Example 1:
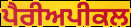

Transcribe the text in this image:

ਪੈਰੀਅਪੀਕਲ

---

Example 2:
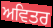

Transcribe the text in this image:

ਅਵਿਤਰ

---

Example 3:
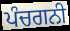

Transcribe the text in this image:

ਪੰਚਗਨੀ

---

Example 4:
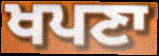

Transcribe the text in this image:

ਖਪਣਾ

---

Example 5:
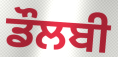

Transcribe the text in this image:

ਡੌਲਬੀ